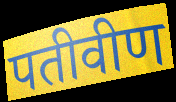
पतीवीण